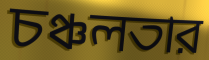
চঞ্চলতার